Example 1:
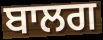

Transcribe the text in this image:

ਬਾਲਗ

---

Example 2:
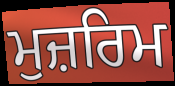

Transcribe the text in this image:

ਮੁਜ਼ਰਿਮ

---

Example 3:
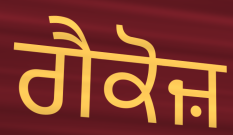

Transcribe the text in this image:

ਗੈਕੋਜ਼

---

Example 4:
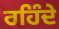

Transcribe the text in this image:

ਰਹਿੰਦੇ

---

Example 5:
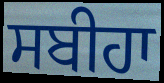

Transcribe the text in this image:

ਸਬੀਹਾ